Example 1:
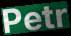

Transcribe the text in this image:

Petr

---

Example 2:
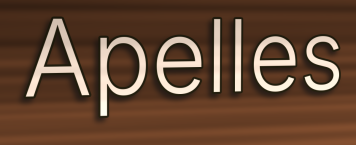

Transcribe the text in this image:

Apelles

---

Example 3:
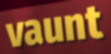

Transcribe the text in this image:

vaunt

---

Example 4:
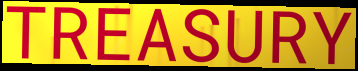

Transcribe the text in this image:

TREASURY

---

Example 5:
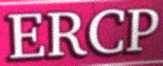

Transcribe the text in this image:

ERCP